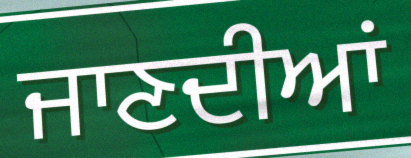
ਜਾਣਦੀਆਂ